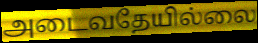
அடைவதேயில்லை